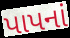
પાપનાં